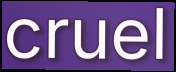
cruel